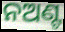
ନଅଣ୍ଟ